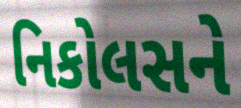
નિકોલસને